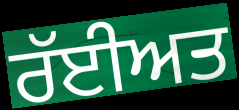
ਰੱਈਅਤ